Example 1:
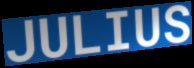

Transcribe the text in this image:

JULIUS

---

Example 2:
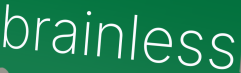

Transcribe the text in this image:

brainless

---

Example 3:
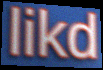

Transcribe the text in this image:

likd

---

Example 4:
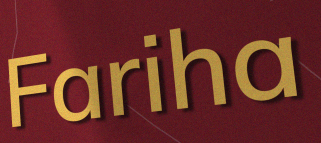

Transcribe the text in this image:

Fariha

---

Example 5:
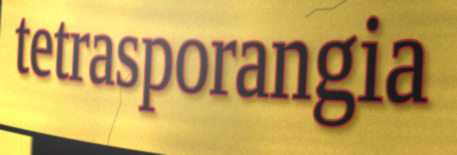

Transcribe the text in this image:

tetrasporangia